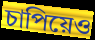
চাপিয়েও